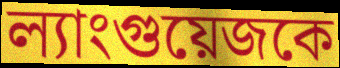
ল্যাংগুয়েজকে